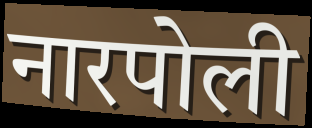
नारपोली